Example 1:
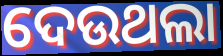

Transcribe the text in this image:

ଦେଉଥଲା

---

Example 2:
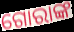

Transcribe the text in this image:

ଗୋରାଙ୍କ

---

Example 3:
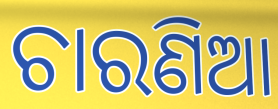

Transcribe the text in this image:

ଚାରଣିଆ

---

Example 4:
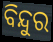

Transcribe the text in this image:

ବିନ୍ଦୁର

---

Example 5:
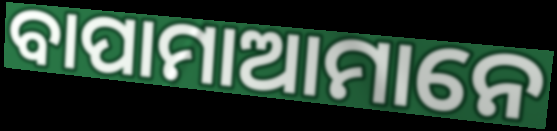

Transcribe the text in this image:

ବାପାମାଆମାନେ